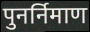
पुनर्निमाण